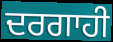
ਦਰਗਾਹੀ